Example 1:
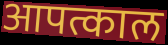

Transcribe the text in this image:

आपत्काल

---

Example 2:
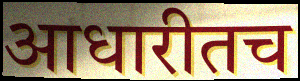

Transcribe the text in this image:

आधारीतच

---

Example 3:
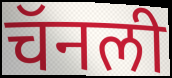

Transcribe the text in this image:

चॅनली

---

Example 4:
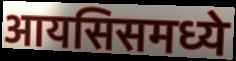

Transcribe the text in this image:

आयसिसमध्ये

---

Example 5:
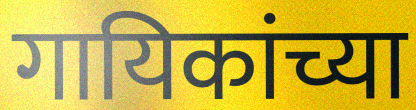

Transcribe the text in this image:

गायिकांच्या